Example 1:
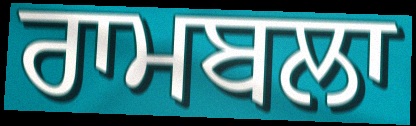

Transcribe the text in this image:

ਰਾਮਬਲਾ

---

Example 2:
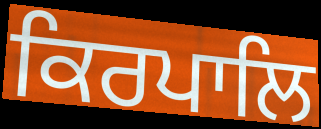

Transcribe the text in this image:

ਕਿਰਪਾਲਿ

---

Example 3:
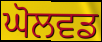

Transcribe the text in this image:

ਘੋਲਵਡ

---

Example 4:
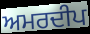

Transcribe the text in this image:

ਅਮਰਦੀਪ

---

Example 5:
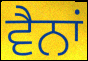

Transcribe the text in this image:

ਵੈਨਾਂ